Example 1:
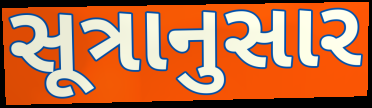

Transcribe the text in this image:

સૂત્રાનુસાર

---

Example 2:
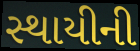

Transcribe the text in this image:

સ્થાયીની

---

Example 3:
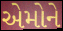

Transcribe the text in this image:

એમોને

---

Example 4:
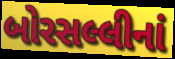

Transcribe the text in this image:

બોરસલ્લીનાં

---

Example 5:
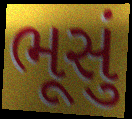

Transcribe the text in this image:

ભૂસું